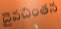
దైవచింతన